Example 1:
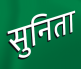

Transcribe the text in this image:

सुनिता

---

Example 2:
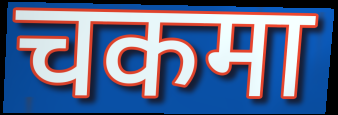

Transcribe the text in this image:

चकमा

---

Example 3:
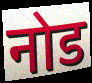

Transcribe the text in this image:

नोड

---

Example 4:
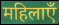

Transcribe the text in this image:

महिलाएँ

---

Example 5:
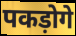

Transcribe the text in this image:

पकड़ोगे